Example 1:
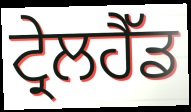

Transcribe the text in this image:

ਟ੍ਰੇਲਹੈੱਡ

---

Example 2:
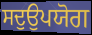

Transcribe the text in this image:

ਸਦੁਉਪਯੋਗ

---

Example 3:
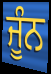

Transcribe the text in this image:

ਜੂੰਨ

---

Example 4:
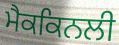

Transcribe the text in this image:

ਮੈਕਕਿਨਲੀ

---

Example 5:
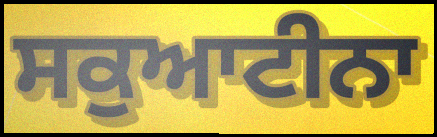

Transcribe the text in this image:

ਸਕੁਆਟੀਨਾ